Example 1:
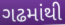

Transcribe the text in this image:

ગઢમાંથી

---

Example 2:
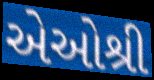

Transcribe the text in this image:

એઓશ્રી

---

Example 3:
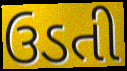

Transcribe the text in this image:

ઉડતી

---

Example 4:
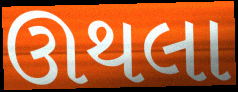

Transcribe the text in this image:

ઊથલા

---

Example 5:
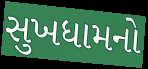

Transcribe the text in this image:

સુખધામનો